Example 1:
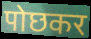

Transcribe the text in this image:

पोछकर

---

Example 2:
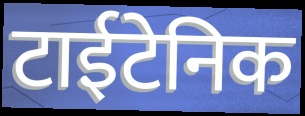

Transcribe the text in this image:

टाईटेनिक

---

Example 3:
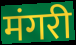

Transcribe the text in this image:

मंगरी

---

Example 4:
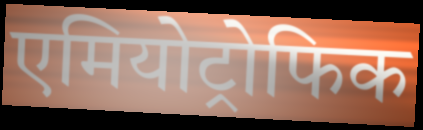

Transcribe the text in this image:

एमियोट्रोफिक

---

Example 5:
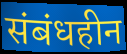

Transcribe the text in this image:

संबंधहीन